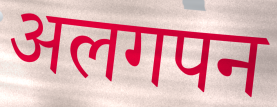
अलगपन